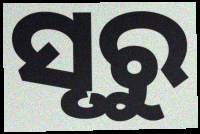
ସୃରୁ